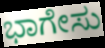
ಭಾಗೇಸು